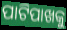
ପାଟିପାଖକୁ